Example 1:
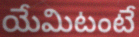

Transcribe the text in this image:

యేమిటంటే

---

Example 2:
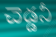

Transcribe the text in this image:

చెడ్డనీ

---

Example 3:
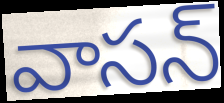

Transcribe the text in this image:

వాసన్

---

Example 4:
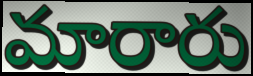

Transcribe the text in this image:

మారారు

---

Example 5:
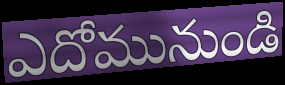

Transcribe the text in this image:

ఎదోమునుండి